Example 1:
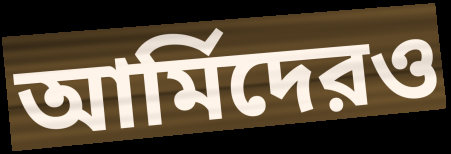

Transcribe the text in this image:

আর্মিদেরও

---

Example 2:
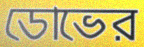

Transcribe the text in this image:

ডোভের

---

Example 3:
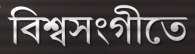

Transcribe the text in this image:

বিশ্বসংগীতে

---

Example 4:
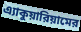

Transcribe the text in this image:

এ্যাকুয়ারিয়ামের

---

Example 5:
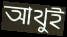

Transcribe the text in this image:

আথুই